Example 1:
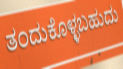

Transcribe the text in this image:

ತಂದುಕೊಳ್ಳಬಹುದು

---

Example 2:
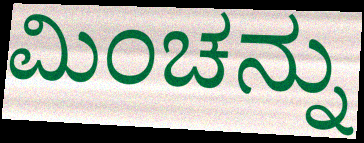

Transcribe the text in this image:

ಮಿಂಚನ್ನು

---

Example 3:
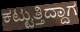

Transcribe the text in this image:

ಕಟ್ಟುತ್ತಿದ್ದಾಗ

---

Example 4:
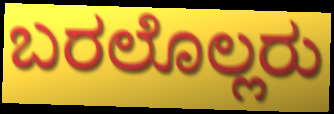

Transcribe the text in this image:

ಬರಲೊಲ್ಲರು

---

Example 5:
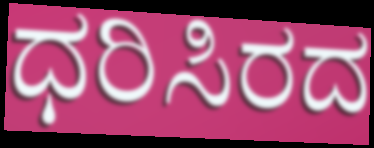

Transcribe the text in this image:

ಧರಿಸಿರದ